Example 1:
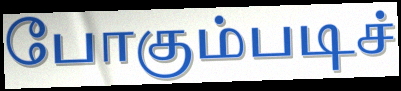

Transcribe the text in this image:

போகும்படிச்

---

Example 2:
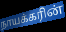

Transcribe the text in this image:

நாயக்கரின்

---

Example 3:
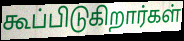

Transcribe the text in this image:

கூப்பிடுகிறார்கள்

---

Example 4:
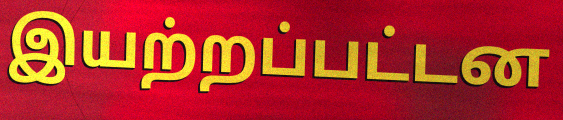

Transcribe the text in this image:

இயற்றப்பட்டன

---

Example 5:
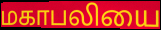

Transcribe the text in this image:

மகாபலியை